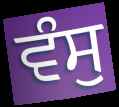
ਵੰਸੁ